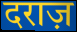
दराज़